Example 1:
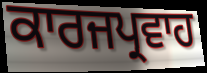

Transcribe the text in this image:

ਕਾਰਜਪ੍ਰਵਾਹ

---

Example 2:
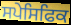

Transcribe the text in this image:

ਸਪੇਸਿਫਿਕ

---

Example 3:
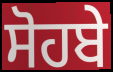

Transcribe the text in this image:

ਸੋਹਬੇ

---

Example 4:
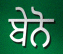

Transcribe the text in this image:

ਬੇਨੋ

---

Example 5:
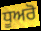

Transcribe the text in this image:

ਧੂਅਰੋ